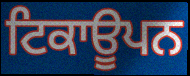
ਟਿਕਾਊਪਨ